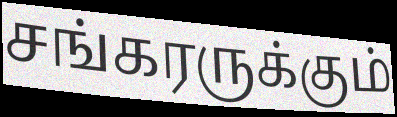
சங்கரருக்கும்